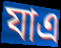
যাএ